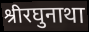
श्रीरघुनाथा